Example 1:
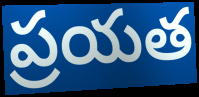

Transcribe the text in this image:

ప్రయత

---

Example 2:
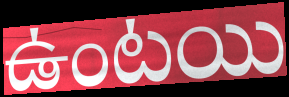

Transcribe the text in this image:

ఉంటయి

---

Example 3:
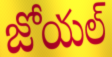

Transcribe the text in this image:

జోయల్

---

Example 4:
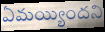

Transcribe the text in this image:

ఏమయ్యిందని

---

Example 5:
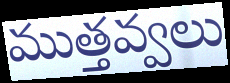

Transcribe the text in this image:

ముత్తవ్వలు